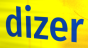
dizer